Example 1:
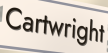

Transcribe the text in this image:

Cartwright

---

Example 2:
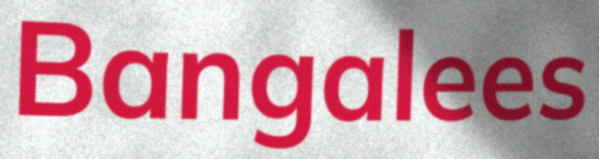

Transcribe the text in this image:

Bangalees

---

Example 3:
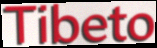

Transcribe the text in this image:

Tibeto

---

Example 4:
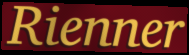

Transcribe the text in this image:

Rienner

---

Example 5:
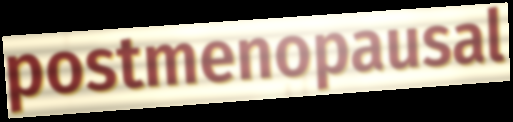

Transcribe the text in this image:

postmenopausal